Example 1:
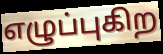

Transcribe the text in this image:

எழுப்புகிற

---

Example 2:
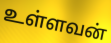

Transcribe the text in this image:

உள்ளவன்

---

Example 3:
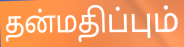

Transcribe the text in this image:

தன்மதிப்பும்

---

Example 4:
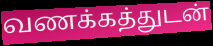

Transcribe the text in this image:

வணக்கத்துடன்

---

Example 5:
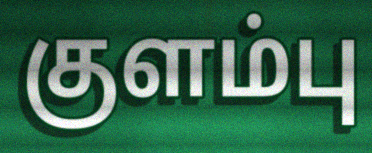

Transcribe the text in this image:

குளம்பு